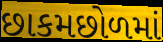
છાકમછોળમાં